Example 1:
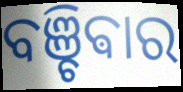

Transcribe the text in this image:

ବଞ୍ଚିଵାର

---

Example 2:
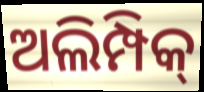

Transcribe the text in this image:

ଅଲିମ୍ପିକ୍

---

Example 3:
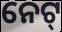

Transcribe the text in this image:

ନେଟ୍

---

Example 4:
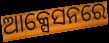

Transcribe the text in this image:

ଆକ୍ସେସନରେ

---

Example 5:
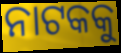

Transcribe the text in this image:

ନାଟକକୁ